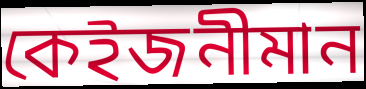
কেইজনীমান